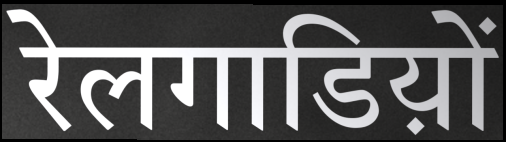
रेलगाडिय़ों